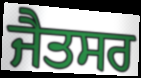
ਜੈਤਸਰ